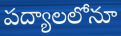
పద్యాలలోనూ